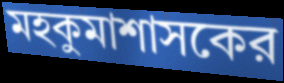
মহকুমাশাসকের